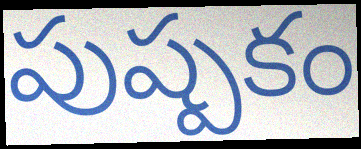
పుష్పకం